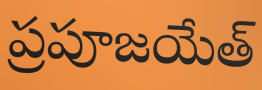
ప్రపూజయేత్